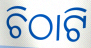
ଚିଠାଟି